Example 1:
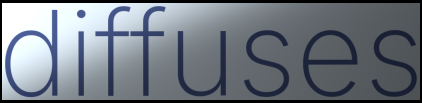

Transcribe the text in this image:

diffuses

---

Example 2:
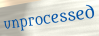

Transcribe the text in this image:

unprocessed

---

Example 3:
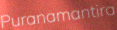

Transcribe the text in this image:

Puranamantira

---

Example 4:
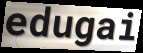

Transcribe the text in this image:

edugai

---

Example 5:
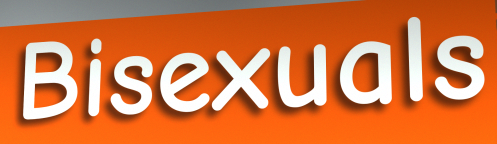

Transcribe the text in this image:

Bisexuals